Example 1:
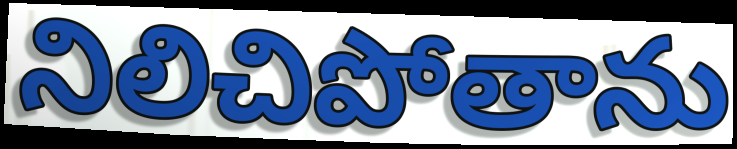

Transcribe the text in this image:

నిలిచిపోతాను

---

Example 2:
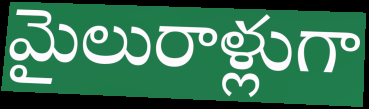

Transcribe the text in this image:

మైలురాళ్లుగా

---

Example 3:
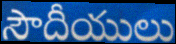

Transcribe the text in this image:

సౌదీయులు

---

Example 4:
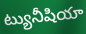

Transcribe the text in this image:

ట్యునీషియా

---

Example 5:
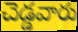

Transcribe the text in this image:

చెడ్డవారు